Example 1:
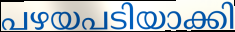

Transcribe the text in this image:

പഴയപടിയാക്കി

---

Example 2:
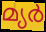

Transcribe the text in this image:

മ്യർ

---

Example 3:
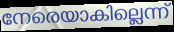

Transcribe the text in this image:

നേരെയാകില്ലെന്ന്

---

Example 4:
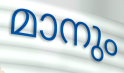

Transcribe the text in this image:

മാനും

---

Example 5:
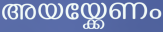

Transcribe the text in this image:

അയയ്ക്കേണം